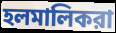
হলমালিকরা